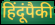
हिंदूंपैकी